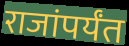
राजांपर्यंत